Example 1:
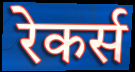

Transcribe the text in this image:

रेकर्स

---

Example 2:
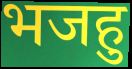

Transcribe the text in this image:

भजहु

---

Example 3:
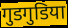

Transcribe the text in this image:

गुडगुडिया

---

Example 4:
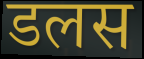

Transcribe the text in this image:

डलस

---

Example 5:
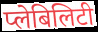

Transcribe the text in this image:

प्लेबिलिटी